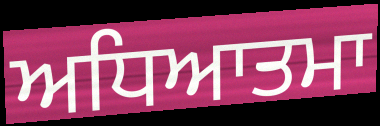
ਅਧਿਆਤਮਾ